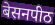
बेसनपीठ